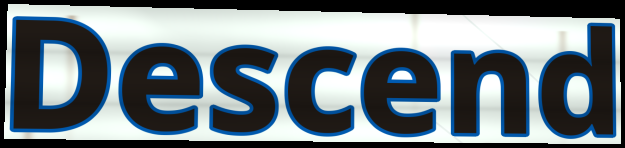
Descend